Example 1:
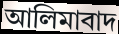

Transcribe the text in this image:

আলিমাবাদ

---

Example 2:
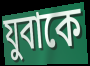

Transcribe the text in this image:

যুবাকে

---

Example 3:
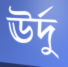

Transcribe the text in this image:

ঊর্দু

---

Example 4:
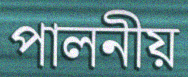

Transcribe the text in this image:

পালনীয়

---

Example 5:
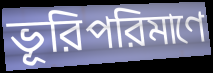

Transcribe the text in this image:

ভূরিপরিমাণে